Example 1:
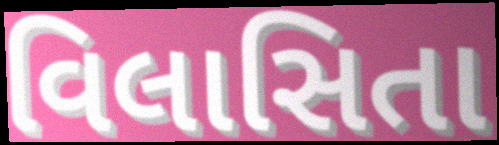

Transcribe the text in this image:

વિલાસિતા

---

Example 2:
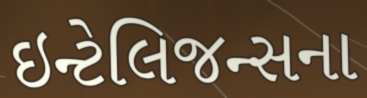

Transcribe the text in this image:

ઇન્ટેલિજન્સના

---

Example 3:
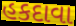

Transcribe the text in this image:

હકદાવા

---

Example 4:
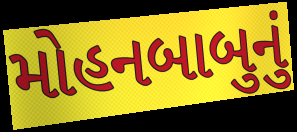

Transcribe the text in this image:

મોહનબાબુનું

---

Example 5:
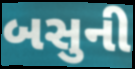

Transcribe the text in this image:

બસુની